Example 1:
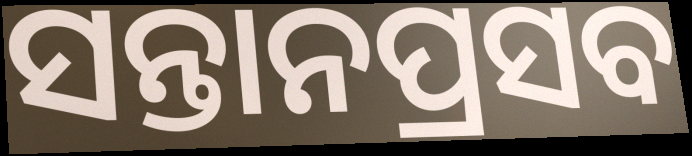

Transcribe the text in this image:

ସନ୍ତାନପ୍ରସବ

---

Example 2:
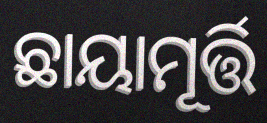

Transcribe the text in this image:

ଛାୟାମୂର୍ତ୍ତି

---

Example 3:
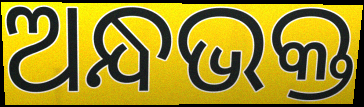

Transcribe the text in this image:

ଅନ୍ଧଭକ୍ତ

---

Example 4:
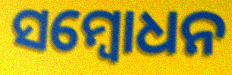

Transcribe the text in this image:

ସମ୍ବୋଧନ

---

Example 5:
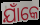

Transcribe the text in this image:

ଯାଁକେ